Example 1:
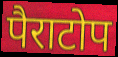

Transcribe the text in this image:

पैराटोप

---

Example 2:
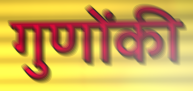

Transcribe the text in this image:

गुणोंकी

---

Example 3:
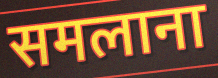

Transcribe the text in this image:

समलाना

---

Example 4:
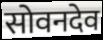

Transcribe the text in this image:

सोवनदेव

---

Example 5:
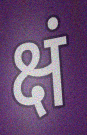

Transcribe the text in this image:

क्षं